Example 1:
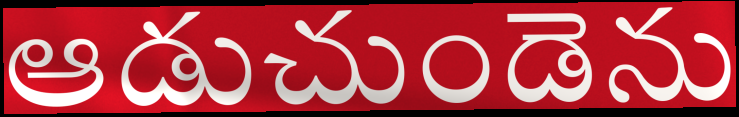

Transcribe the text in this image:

ఆడుచుండెను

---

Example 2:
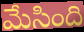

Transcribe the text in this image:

మేసింది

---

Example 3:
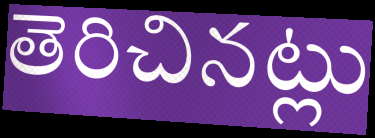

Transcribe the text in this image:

తెరిచినట్లు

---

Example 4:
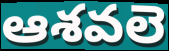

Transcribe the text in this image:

ఆశవలె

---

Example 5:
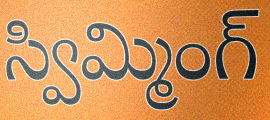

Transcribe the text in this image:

స్విమ్మింగ్